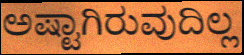
ಅಷ್ಟಾಗಿರುವುದಿಲ್ಲ